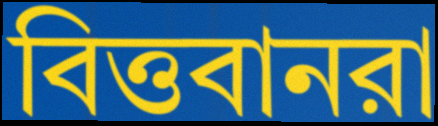
বিত্তবানরা